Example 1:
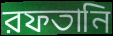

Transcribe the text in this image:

রফতানি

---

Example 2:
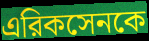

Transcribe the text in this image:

এরিকসেনকে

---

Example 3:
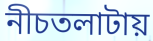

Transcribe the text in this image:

নীচতলাটায়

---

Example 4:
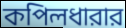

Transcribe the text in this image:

কপিলধারার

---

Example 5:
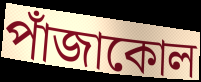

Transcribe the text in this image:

পাঁজাকোল